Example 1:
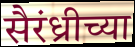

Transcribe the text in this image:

सैरंध्रीच्या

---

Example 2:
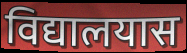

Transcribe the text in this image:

विद्यालयास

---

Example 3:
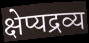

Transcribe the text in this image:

क्षेप्यद्रव्य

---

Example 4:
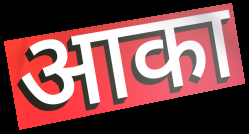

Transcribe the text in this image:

आका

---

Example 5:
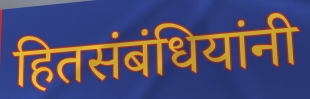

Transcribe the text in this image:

हितसंबंधियांनी